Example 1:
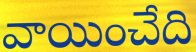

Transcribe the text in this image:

వాయించేది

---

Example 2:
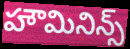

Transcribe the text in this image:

హౌమినిన్స్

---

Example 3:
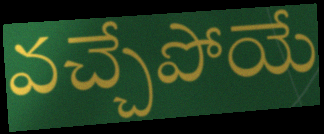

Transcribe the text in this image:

వచ్చేపోయే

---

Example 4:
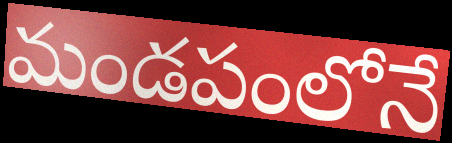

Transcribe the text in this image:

మండపంలోనే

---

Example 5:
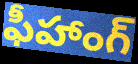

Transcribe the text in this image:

ఫీహాంగ్